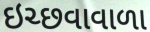
ઇચ્છવાવાળા